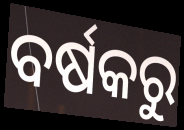
ବର୍ଷକରୁ